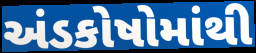
અંડકોષોમાંથી